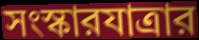
সংস্কারযাত্রার